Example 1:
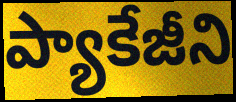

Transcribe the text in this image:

ప్యాకేజీని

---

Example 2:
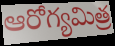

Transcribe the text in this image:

ఆరోగ్యమిత్ర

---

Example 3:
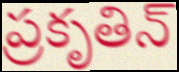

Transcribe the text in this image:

ప్రకృతిన్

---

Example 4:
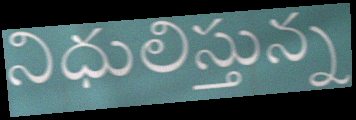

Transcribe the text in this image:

నిధులిస్తున్న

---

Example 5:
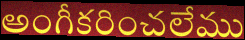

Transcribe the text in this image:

అంగీకరించలేము